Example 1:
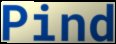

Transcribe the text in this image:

Pind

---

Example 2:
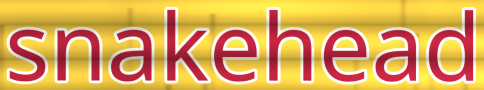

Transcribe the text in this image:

snakehead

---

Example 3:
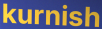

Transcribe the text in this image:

kurnish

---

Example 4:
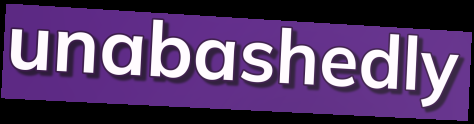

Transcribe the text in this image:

unabashedly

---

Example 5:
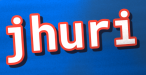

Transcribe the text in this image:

jhuri